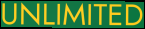
UNLIMITED